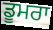
ਡੂਮਰਾ